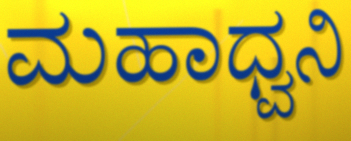
ಮಹಾಧ್ವನಿ